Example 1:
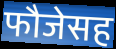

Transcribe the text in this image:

फौजेसह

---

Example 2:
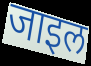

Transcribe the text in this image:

जाइल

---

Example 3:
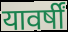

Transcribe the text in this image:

यावर्षीं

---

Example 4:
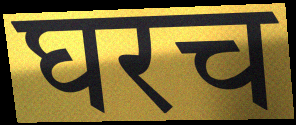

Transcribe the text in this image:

घरच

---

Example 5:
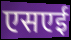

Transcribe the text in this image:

एसएई